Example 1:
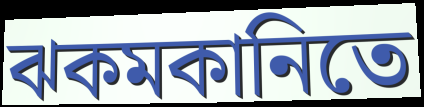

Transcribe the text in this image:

ঝকমকানিতে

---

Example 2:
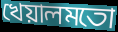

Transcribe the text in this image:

খেয়ালমতো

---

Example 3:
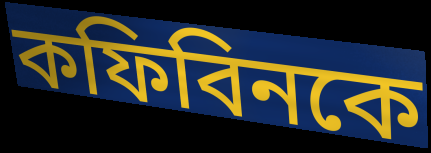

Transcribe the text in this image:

কফিবিনকে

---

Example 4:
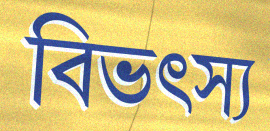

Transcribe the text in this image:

বিভৎস্য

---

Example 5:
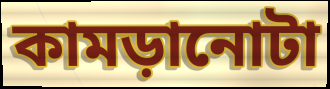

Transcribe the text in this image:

কামড়ানোটা